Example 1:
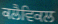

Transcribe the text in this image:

ਕਲੈਵਿਕਲ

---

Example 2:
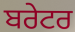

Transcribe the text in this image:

ਬਰੇਟਰ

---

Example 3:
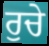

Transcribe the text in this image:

ਰੁਚੇ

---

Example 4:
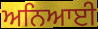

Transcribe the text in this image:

ਅਨਿਆਈ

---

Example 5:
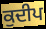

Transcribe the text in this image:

ਕੁਦੀਪ